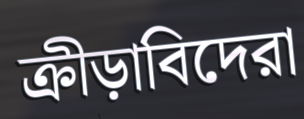
ক্রীড়াবিদেরা